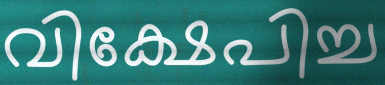
വിക്ഷേപിച്ച